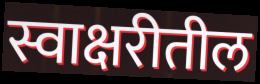
स्वाक्षरीतील